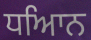
ਧਆਿਨ